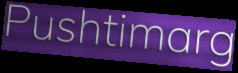
Pushtimarg